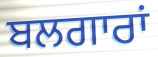
ਬਲਗਾਰਾਂ